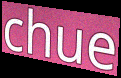
chue